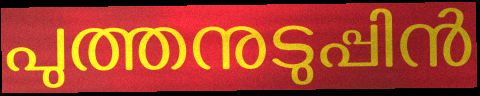
പുത്തനുടുപ്പിൻ